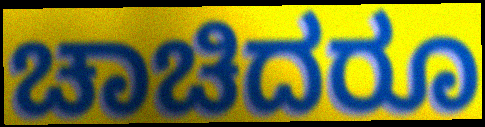
ಚಾಚಿದರೂ